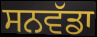
ਸਨਵੱਡਾ